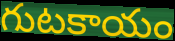
గుటకాయం